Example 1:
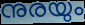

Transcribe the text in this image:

നുരയും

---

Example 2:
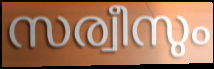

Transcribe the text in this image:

സര്വീസും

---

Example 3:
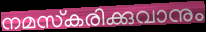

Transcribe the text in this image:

നമസ്‌കരിക്കുവാനും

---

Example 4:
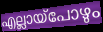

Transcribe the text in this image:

എല്ലായ്പോഴും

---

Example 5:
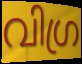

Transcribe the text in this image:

വിഗ്ര